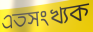
এতসংখ্যক